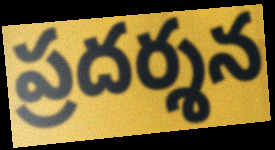
ప్రదర్శన